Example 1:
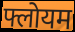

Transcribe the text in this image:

फ्लोयम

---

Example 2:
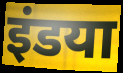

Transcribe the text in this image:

इंडया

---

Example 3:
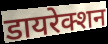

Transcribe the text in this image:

डायरेक्शन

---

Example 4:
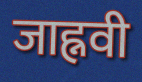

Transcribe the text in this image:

जाह्नवी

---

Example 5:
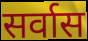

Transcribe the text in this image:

सर्वास